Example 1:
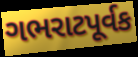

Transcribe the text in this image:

ગભરાટપૂર્વક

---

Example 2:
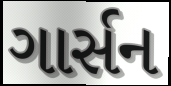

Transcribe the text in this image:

ગાર્સન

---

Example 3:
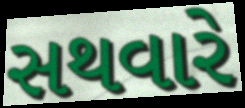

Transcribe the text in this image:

સથવારે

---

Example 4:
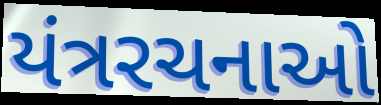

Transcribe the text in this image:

યંત્રરચનાઓ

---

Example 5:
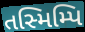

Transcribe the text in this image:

તસ્મિમ્પિ